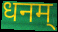
धनम्